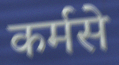
कर्मसे